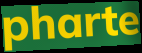
pharte